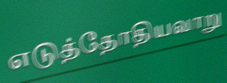
எடுத்தோதியவாறு